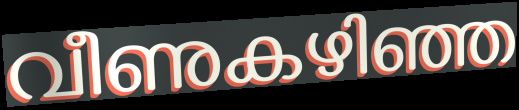
വീണുകഴിഞ്ഞ